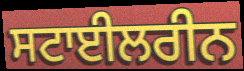
ਸਟਾਈਲਰੀਨ